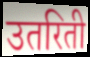
उतरिती